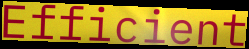
Efficient